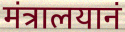
मंत्रालयानं